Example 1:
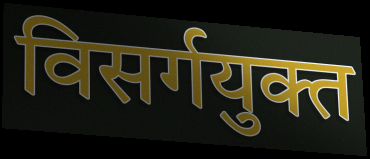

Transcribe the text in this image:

विसर्गयुक्त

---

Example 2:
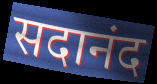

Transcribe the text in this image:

सदानंद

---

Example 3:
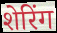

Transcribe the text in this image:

शेरिंग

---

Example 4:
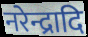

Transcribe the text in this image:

नरेन्द्रादि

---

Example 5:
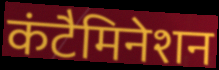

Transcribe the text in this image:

कंटैमिनेशन